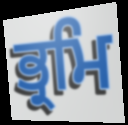
ਭ੍ਰਮਿ